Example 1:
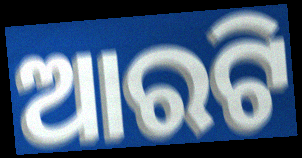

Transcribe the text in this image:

ଆରଟି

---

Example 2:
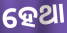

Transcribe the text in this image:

ହେଥା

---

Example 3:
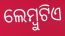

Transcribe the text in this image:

ଲେମ୍ବୁଟିଏ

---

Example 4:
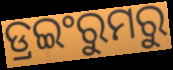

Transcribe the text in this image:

ଡ୍ରଇଂରୁମରୁ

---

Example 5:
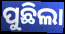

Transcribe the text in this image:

ପୁଛିଲା